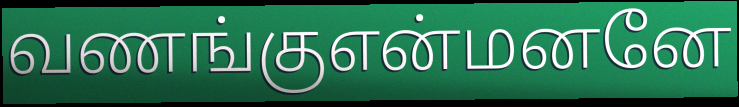
வணங்குஎன்மனனே